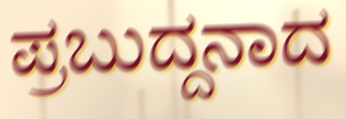
ಪ್ರಬುದ್ದನಾದ